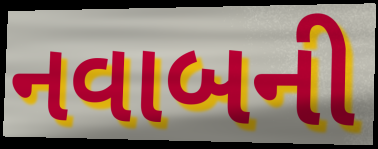
નવાબની